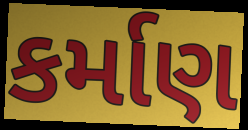
કર્માણ